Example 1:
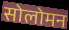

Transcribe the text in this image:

सोलोमन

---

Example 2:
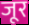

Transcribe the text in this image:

जूर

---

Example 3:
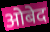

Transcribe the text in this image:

ओबेद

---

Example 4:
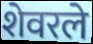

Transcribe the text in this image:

शेवरले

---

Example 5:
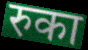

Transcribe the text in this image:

रुका